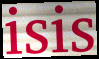
isis